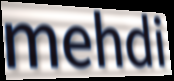
mehdi